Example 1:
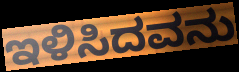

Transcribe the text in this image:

ಇಳಿಸಿದವನು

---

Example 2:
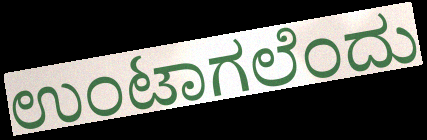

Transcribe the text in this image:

ಉಂಟಾಗಲೆಂದು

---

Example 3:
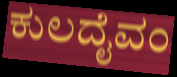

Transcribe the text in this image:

ಕುಲದೈವಂ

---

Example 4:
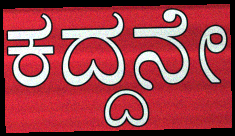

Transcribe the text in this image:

ಕದ್ದನೇ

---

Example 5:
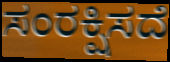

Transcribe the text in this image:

ಸಂರಕ್ಷಿಸದೆ